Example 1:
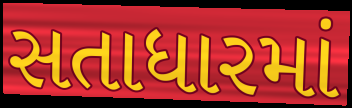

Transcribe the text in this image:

સતાધારમાં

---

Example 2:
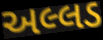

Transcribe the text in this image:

અલ્લડ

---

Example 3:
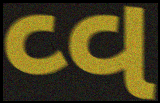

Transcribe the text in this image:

વ્વ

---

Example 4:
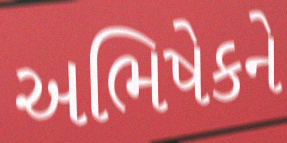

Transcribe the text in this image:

અભિષેકને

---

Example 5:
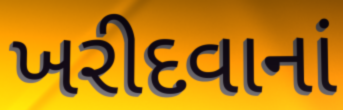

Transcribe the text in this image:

ખરીદવાનાં